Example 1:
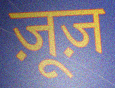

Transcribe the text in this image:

ज़ूज़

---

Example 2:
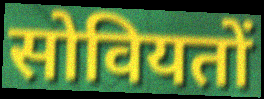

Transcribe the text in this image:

सोवियतों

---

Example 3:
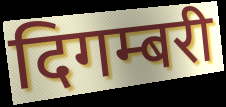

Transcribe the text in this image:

दिगम्बरी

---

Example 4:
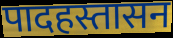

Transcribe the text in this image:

पादहस्तासन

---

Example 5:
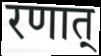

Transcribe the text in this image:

रणात्